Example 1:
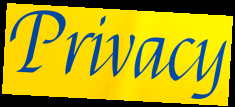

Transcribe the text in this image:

Privacy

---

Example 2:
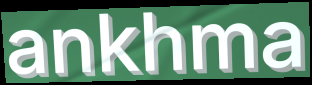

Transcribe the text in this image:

ankhma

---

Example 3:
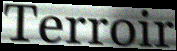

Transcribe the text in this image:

Terroir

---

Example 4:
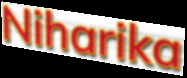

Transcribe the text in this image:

Niharika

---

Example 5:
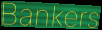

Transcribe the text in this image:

Bankers